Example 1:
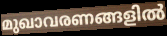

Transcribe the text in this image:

മുഖാവരണങ്ങളിൽ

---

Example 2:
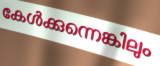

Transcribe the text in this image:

കേൾക്കുന്നെങ്കിലും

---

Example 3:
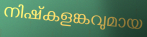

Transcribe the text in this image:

നിഷ്‌കളങ്കവുമായ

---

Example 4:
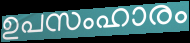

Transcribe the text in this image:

ഉപസംഹാരം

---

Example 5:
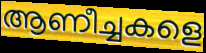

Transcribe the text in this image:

ആണീച്ചകളെ